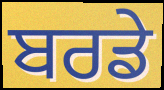
ਬਰਡੇ